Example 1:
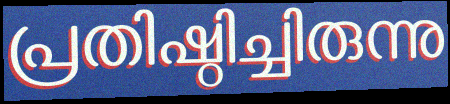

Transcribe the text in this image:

പ്രതിഷ്ഠിച്ചിരുന്നു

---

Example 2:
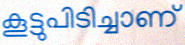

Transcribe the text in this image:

കൂട്ടുപിടിച്ചാണ്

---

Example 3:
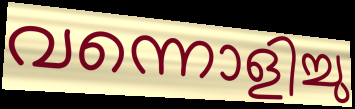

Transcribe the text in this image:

വന്നൊളിച്ചു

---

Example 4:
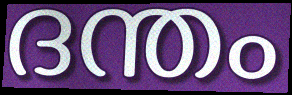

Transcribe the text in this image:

ദന്തം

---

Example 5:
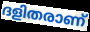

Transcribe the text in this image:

ദളിതരാണ്